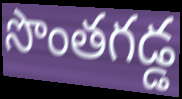
సొంతగడ్డ